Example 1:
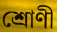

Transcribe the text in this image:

শ্রোণী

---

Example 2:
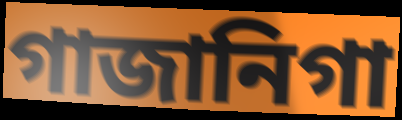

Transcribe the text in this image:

গাজানিগা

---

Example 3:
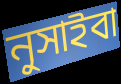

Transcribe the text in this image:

নুসাইবা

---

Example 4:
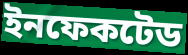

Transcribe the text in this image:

ইনফেকটেড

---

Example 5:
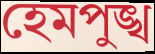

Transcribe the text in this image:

হেমপুঙ্খ